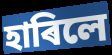
হাৰিলে